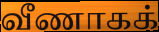
வீணாகக்